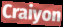
Craiyon